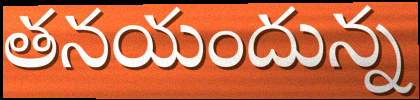
తనయందున్న